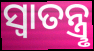
ସ୍ବାତନ୍ତ୍ରୢ